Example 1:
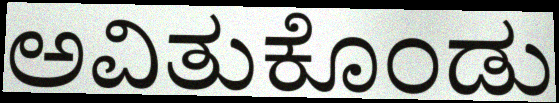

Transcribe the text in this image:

ಅವಿತುಕೊಂಡು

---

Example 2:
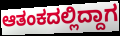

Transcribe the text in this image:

ಆತಂಕದಲ್ಲಿದ್ದಾಗ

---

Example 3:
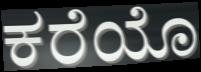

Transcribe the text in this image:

ಕರೆಯೊ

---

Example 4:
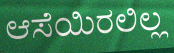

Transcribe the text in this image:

ಆಸೆಯಿರಲಿಲ್ಲ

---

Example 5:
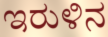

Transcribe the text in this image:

ಇರುಳಿನ